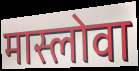
मास्लोवा